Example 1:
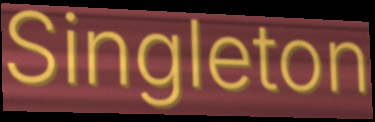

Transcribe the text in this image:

Singleton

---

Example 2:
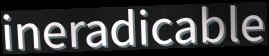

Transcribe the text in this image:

ineradicable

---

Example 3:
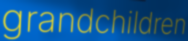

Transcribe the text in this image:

grandchildren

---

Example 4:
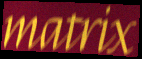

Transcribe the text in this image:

matrix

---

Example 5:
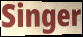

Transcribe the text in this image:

Singer